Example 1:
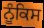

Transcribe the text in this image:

ਨੂੰਕਿਸ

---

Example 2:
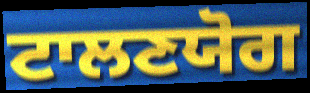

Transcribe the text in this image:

ਟਾਲਣਯੋਗ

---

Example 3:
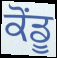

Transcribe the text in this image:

ਕੋਂਡੂ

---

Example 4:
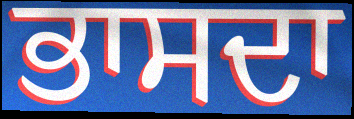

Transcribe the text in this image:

ਭਾਸਦਾ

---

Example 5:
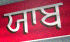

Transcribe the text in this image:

ਯਾਬ